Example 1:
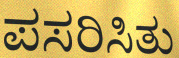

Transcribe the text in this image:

ಪಸರಿಸಿತು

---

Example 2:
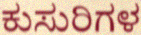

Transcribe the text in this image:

ಕುಸುರಿಗಳ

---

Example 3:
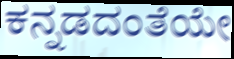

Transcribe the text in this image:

ಕನ್ನಡದಂತೆಯೇ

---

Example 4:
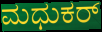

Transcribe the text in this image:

ಮಧುಕರ್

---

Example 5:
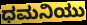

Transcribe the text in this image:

ಧಮನಿಯು